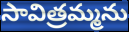
సావిత్రమ్మను